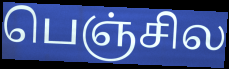
பெஞ்சில